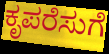
ಕೃಪರೆಸುಗೆ